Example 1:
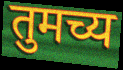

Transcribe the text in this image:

तुमच्य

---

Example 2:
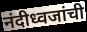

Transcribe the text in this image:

नंदीध्वजांची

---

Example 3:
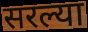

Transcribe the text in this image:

सरल्या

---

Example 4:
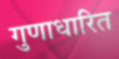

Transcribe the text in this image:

गुणाधारित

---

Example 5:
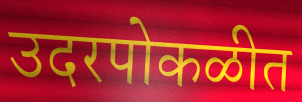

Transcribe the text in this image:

उदरपोकळीत